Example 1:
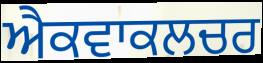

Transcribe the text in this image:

ਐਕਵਾਕਲਚਰ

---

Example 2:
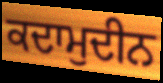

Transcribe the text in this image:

ਕਦਾਮੁਦੀਨ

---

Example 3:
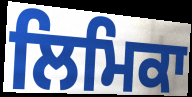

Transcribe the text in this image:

ਲਿਮਿਕਾ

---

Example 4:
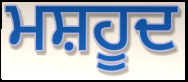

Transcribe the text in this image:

ਮਸ਼ਹੂਦ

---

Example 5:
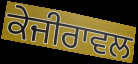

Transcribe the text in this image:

ਕੇਜੀਰਾਵਲ